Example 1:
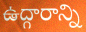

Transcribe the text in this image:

ఉద్గారాన్ని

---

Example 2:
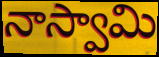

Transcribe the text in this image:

నాస్వామి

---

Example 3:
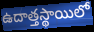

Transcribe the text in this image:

ఉదాత్తస్థాయిలో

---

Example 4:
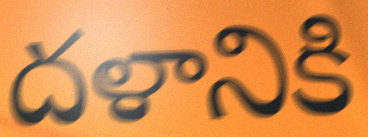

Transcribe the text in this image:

దళానికి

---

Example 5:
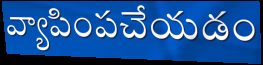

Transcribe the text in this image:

వ్యాపింపచేయడం